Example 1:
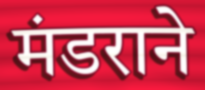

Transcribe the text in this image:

मंडराने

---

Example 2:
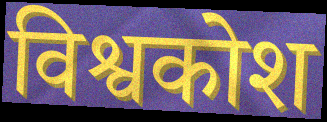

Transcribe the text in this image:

विश्वकोश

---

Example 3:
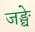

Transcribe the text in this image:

जङ्घे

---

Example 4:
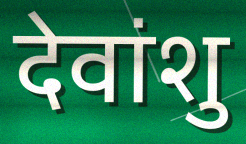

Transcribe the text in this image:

देवांशु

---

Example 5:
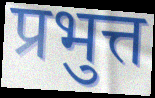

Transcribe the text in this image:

प्रभुत्त